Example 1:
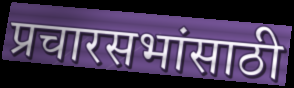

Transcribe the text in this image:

प्रचारसभांसाठी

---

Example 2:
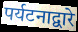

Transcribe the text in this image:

पर्यटनाद्वारे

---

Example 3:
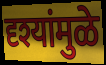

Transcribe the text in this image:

दृश्यांमुळे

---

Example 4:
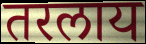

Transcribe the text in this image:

तरलाय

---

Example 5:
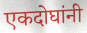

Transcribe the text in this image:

एकदोघांनी